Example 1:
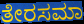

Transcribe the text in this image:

ತೇರಸಮಾ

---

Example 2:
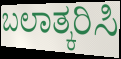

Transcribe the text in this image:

ಬಲಾತ್ಕರಿಸಿ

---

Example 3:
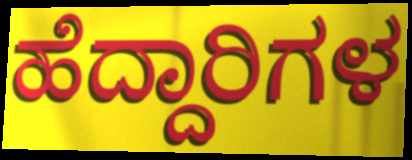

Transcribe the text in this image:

ಹೆದ್ದಾರಿಗಳ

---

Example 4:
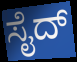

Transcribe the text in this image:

ಸೈದ್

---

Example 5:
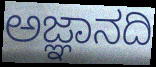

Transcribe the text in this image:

ಅಜ್ಞಾನದಿ